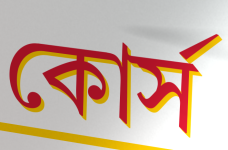
কোর্স